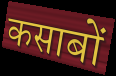
कसाबों